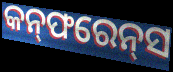
କନ୍‌ଫରେନ୍‌ସ